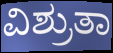
ವಿಶ್ರುತಾ